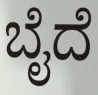
ಬೈದೆ